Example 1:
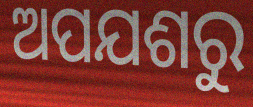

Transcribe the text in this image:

ଅପଯଶରୁ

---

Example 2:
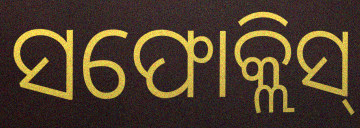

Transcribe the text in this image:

ସଫୋକ୍ଲିସ୍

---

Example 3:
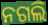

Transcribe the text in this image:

ନଗଲି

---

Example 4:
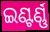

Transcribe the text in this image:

ଇଣ୍ଟର୍ଣ୍ଣ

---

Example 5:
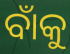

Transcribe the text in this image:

ବାଁକୁ